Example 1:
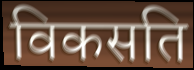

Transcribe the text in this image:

विकसति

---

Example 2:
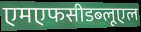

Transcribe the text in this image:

एमएफसीडब्‍लूएल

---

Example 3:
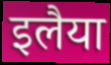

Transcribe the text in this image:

इलैया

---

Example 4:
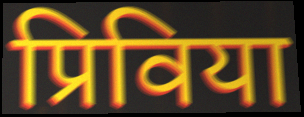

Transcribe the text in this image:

प्रिविया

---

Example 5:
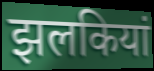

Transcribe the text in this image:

झलकियां